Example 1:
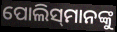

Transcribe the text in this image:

ପୋଲିସ୍‌ମାନଙ୍କୁ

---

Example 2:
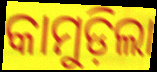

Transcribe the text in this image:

କାମୁଡ଼ିଲା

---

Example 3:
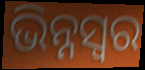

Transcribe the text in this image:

ଭିନ୍ନସ୍ବର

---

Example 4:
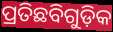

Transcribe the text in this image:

ପ୍ରତିଛବିଗୁଡ଼ିକ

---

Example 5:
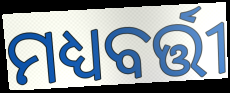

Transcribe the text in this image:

ମଧ୍ୟବର୍ତ୍ତୀ